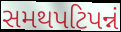
સમથપટિપન્નં